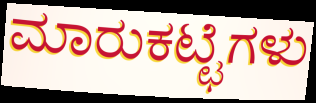
ಮಾರುಕಟ್ಟೆಗಳು